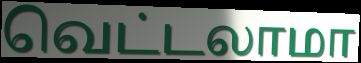
வெட்டலாமா